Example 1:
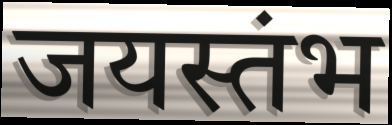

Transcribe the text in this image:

जयस्तंभ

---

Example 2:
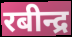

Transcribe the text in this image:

रबीन्द्र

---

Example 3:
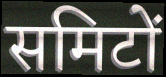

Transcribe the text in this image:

समिटों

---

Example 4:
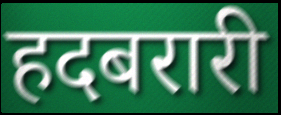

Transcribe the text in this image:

हदबरारी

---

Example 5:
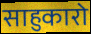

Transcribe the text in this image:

साहुकारो